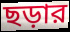
ছড়ার